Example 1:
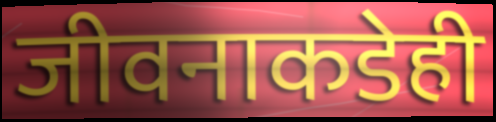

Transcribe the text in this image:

जीवनाकडेही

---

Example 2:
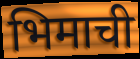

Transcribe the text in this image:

भिमाची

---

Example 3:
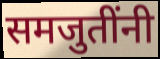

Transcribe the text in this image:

समजुतींनी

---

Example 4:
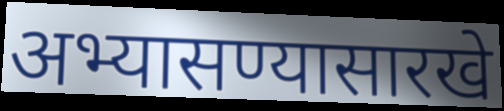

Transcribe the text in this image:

अभ्यासण्यासारखे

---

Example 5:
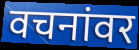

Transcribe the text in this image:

वचनांवर